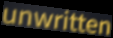
unwritten